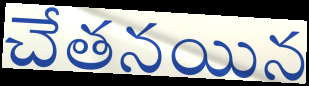
చేతనయిన